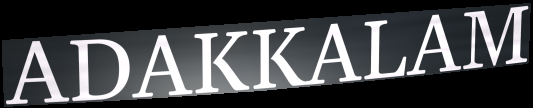
ADAKKALAM